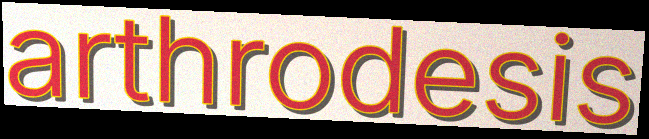
arthrodesis